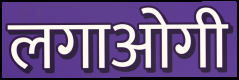
लगाओगी